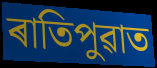
ৰাতিপুৱাত